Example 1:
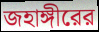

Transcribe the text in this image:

জহাঙ্গীরের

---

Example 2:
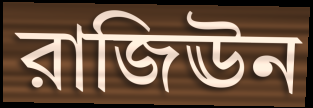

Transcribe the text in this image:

রাজিঊন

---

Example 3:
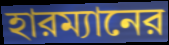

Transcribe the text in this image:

হারম্যানের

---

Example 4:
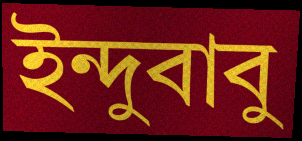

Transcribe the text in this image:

ইন্দুবাবু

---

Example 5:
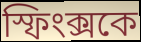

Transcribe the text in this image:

স্ফিংক্সকে